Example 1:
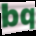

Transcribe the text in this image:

bq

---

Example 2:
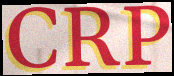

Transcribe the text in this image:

CRP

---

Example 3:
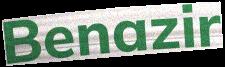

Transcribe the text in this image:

Benazir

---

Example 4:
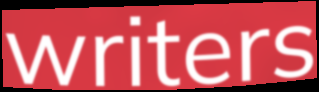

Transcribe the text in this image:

writers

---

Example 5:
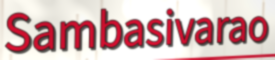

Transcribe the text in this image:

Sambasivarao